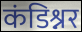
कंडिश्नर